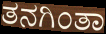
ತನಗಿಂತಾ